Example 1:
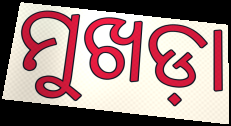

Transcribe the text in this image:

ମୁଖଡ଼ା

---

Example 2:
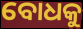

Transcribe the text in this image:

ବୋଧକୁ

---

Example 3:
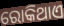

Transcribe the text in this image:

ରୋକିଥାଏ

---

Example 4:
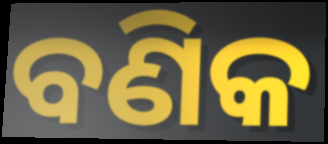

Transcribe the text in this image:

ବଣିକ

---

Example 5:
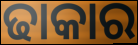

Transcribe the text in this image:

ଢାକାର